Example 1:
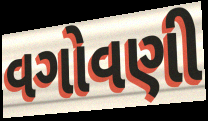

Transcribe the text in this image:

વગોવણી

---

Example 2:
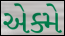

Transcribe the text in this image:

એક્મે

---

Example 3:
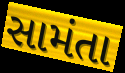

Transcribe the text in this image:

સામંતા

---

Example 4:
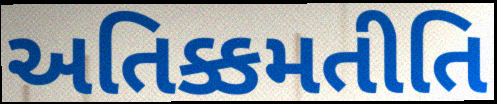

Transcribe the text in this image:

અતિક્કમતીતિ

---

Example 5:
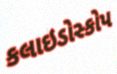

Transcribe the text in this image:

કલાઇડોસ્કોપ